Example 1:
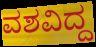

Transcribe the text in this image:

ವಶವಿದ್ದ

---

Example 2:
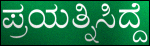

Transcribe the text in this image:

ಪ್ರಯತ್ನಿಸಿದ್ದೆ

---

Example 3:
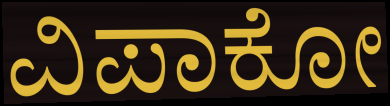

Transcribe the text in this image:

ವಿಪಾಕೋ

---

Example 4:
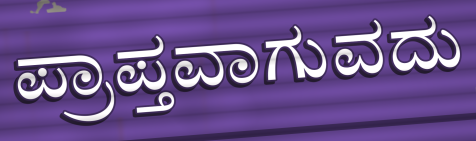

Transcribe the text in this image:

ಪ್ರಾಪ್ತವಾಗುವದು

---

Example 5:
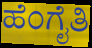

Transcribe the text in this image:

ಹೆಂಗೈತಿ